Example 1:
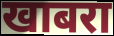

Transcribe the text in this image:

खाबरा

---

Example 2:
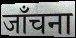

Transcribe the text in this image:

जाँचना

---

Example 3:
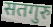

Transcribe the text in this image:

सतगुरु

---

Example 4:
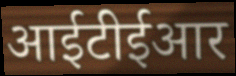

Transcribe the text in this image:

आईटीईआर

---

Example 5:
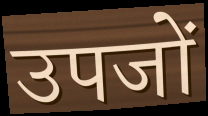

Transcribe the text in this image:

उपजों